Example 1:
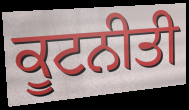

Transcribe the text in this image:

ਕੂਟਨੀਤੀ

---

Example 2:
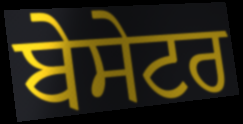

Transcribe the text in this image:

ਬੇਸੇਟਰ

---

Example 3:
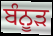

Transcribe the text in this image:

ਬੰਨੂੜ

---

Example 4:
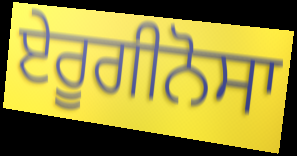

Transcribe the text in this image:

ਏਰੂਗੀਨੋਸਾ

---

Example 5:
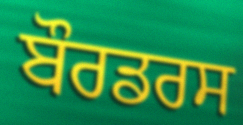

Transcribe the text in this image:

ਬੌਰਡਰਸ